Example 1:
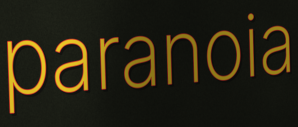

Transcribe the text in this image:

paranoia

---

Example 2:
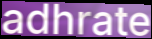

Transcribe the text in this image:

adhrate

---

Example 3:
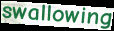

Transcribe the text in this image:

swallowing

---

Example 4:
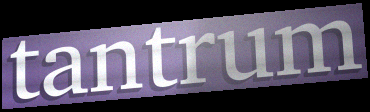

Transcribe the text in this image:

tantrum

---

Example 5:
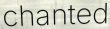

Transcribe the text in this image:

chanted